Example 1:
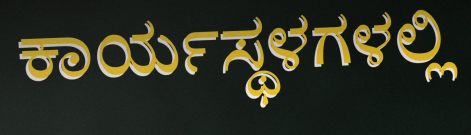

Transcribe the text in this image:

ಕಾರ್ಯಸ್ಥಳಗಳಲ್ಲಿ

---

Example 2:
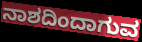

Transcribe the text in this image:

ನಾಶದಿಂದಾಗುವ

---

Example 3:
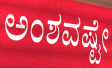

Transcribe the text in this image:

ಅಂಶವಷ್ಟೇ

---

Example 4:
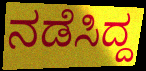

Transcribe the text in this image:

ನಡೆಸಿದ್ದ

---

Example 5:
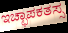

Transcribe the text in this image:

ಇಚ್ಛಾಪಕತಸ್ಸ